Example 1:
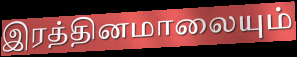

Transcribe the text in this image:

இரத்தினமாலையும்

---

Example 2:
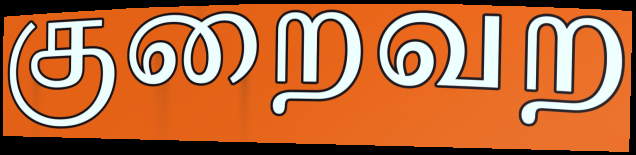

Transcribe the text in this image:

குறைவற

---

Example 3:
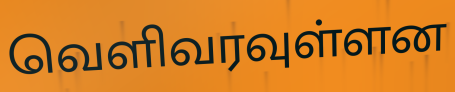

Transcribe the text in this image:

வெளிவரவுள்ளன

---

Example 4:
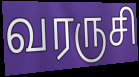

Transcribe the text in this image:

வரருசி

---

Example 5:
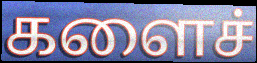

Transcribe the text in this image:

களைச்